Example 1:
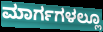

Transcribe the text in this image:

ಮಾರ್ಗಗಳಲ್ಲೂ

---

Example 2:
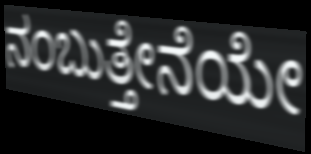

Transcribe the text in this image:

ನಂಬುತ್ತೇನೆಯೇ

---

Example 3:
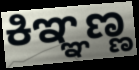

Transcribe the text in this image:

ಕಿಞ್ಞಣ್ಣ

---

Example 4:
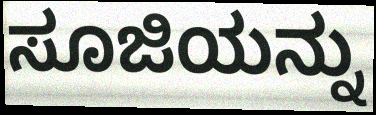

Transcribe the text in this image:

ಸೂಜಿಯನ್ನು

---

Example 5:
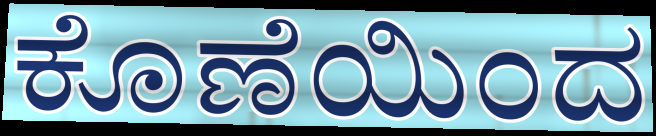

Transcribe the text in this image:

ಕೊಣೆಯಿಂದ